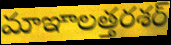
మాఞాలత్తరశర్